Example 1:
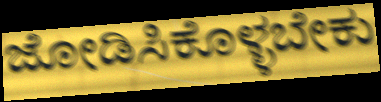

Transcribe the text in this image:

ಜೋಡಿಸಿಕೊಳ್ಳಬೇಕು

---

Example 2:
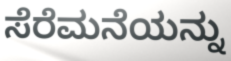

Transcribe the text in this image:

ಸೆರೆಮನೆಯನ್ನು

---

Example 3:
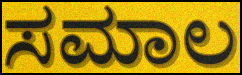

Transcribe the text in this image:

ಸಮಾಲ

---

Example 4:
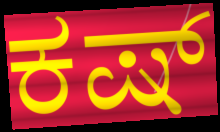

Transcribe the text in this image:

ಕಷ್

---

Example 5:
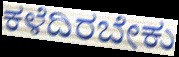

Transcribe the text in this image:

ಕಳೆದಿರಬೇಕು